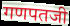
गणपतजी